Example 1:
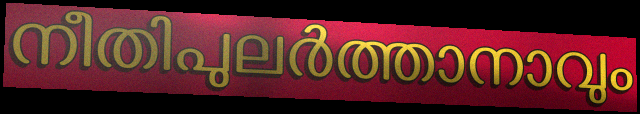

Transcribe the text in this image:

നീതിപുലർത്താനാവും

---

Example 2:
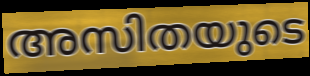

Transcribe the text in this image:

അസിതയുടെ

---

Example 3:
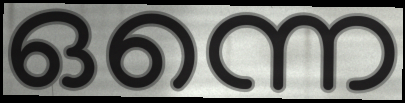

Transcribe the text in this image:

ഒന്നെ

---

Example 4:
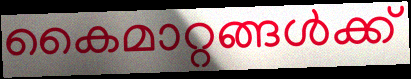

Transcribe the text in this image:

കൈമാറ്റങ്ങൾക്ക്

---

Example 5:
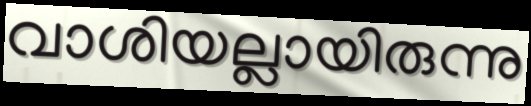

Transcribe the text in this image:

വാശിയല്ലായിരുന്നു